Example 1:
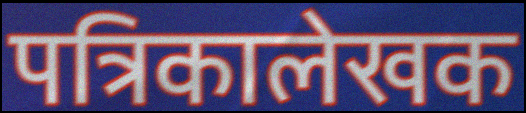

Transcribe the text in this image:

पत्रिकालेखक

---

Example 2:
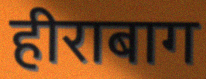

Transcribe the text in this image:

हीराबाग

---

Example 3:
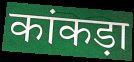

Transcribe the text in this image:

कांकड़ा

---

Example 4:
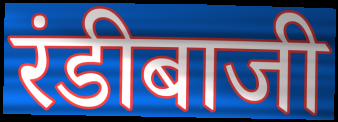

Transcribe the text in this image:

रंडीबाजी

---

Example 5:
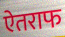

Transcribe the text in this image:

ऐतराफ